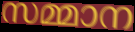
സമ്മാന